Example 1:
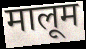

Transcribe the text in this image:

मालूम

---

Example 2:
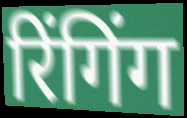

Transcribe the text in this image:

रिंगिंग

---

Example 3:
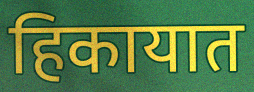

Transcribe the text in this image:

हिकायात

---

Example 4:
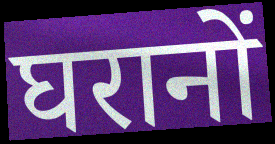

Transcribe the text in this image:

घरानों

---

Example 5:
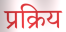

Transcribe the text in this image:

प्रक्रिय